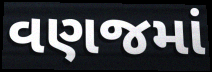
વણજમાં